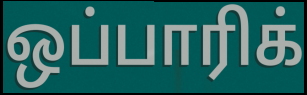
ஒப்பாரிக்